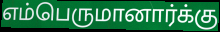
எம்பெருமானார்க்கு